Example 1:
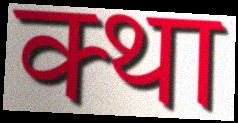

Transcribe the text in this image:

क्था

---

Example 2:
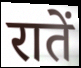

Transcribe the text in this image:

रातें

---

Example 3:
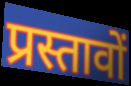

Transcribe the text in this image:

प्रस्तावों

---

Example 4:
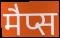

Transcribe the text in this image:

मैप्स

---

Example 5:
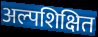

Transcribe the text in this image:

अल्पशिक्षित